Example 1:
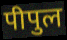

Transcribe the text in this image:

पीपुल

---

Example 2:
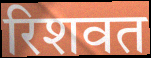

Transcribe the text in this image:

रिशवत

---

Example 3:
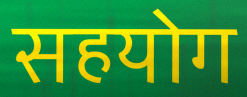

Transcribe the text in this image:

सहयोग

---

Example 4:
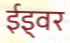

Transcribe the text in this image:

ईइ्वर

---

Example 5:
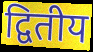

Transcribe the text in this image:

द्वितीय